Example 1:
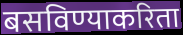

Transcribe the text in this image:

बसविण्याकरिता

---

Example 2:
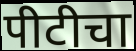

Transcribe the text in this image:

पीटीचा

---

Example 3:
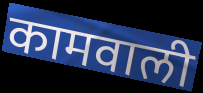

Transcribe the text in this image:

कामवाली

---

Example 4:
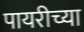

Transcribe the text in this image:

पायरीच्या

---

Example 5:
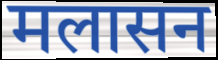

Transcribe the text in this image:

मलासन